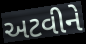
અટવીને